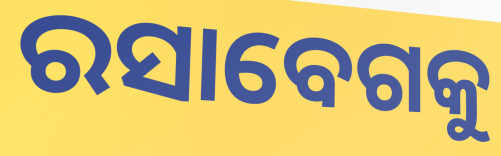
ରସାବେଗକୁ